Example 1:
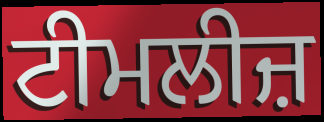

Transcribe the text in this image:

ਟੀਮਲੀਜ਼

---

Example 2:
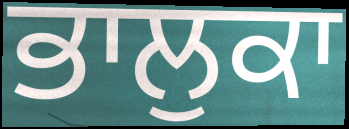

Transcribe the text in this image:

ਭਾਲੁਕਾ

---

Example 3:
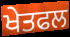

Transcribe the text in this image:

ਖੇਤਫਲ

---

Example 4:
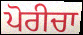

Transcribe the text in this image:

ਪੋਰੀਚਾ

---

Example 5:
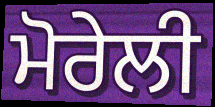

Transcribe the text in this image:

ਮੋਰੇਲੀ